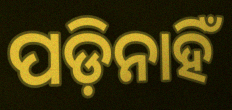
ପଡ଼ିନାହିଁ